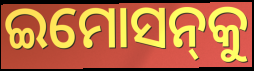
ଇମୋସନ୍‌କୁ